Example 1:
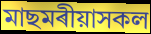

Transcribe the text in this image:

মাছমৰীয়াসকল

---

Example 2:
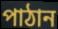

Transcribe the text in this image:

পাঠান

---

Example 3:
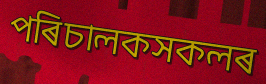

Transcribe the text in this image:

পৰিচালকসকলৰ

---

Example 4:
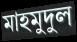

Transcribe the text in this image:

মাহমুদুল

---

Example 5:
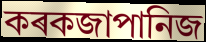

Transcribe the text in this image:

কৰকজাপানিজ